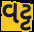
વટ્ટ